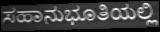
ಸಹಾನುಭೂತಿಯಲ್ಲಿ